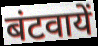
बंटवायें